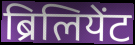
ब्रिलियेंट